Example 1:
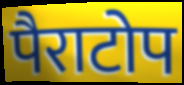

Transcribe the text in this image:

पैराटोप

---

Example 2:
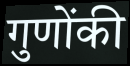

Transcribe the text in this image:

गुणोंकी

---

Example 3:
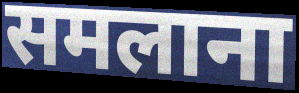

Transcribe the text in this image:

समलाना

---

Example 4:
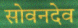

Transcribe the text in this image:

सोवनदेव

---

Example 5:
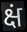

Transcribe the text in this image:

क्षं